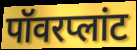
पॉवरप्लांट